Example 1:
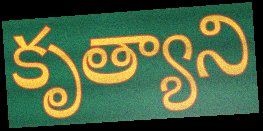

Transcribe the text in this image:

కృత్యాని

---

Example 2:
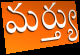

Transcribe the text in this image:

మర్త్యు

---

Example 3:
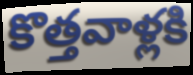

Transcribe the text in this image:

కొత్తవాళ్లకి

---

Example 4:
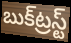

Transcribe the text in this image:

బుక్‌ట్రస్ట్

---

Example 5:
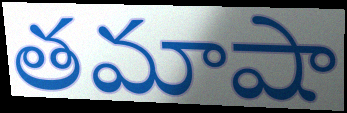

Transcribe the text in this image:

తమాషా